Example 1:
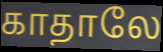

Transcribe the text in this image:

காதாலே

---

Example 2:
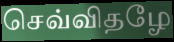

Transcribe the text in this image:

செவ்விதழே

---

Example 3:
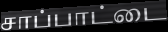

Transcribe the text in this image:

சாப்பாட்டை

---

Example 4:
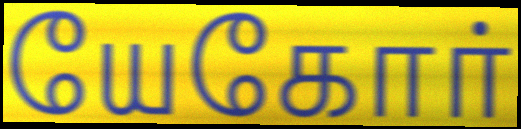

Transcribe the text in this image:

யேகோர்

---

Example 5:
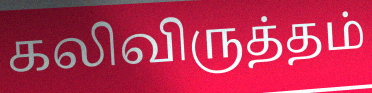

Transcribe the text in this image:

கலிவிருத்தம்